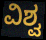
ವಿಶ್ವ